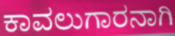
ಕಾವಲುಗಾರನಾಗಿ